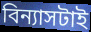
বিন্যাসটাই